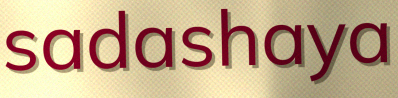
sadashaya